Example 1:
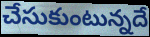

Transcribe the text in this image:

చేసుకుంటున్నదే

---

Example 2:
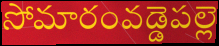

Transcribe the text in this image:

సోమారంవడ్డెపల్లె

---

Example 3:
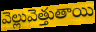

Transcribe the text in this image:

వెల్లువెత్తుతాయి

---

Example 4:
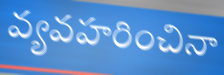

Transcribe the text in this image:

వ్యవహరించినా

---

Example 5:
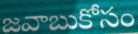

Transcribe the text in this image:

జవాబుకోసం